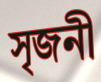
সৃজনী